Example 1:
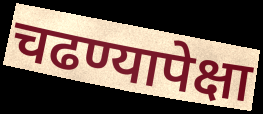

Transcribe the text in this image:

चढण्यापेक्षा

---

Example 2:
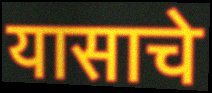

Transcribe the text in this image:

यासाचे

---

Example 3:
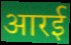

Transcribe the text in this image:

आरई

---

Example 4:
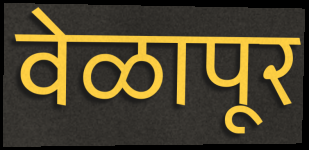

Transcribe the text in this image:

वेळापूर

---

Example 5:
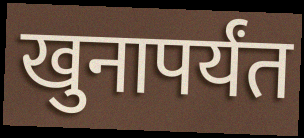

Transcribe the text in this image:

खुनापर्यंत